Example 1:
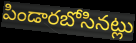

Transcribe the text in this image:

పిండారబోసినట్లు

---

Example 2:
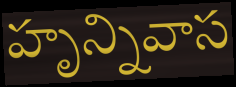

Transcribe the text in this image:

హృన్నివాస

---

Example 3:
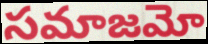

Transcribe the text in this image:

సమాజమో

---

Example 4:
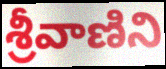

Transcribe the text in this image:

శ్రీవాణిని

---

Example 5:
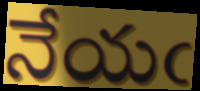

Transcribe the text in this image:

నేయఁ